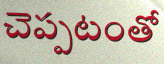
చెప్పటంతో